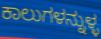
ಕಾಲುಗಳನ್ನುಳ್ಳ